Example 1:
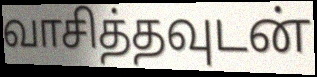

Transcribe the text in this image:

வாசித்தவுடன்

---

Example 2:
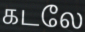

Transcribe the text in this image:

கடலே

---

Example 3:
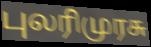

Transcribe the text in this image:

புலரிமுரசு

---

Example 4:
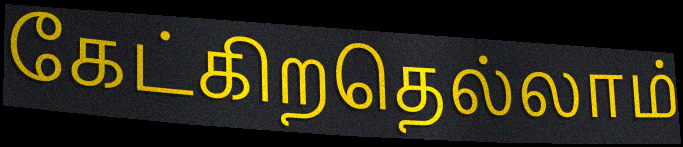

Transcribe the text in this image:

கேட்கிறதெல்லாம்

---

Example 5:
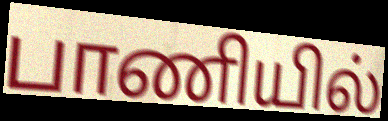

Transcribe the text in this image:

பாணியில்